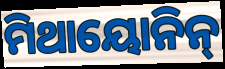
ମିଥାୟୋନିନ୍